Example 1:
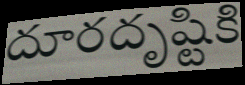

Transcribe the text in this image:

దూరదృష్టికి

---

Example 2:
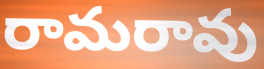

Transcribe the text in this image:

రామరావు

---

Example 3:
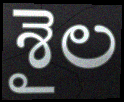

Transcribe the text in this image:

శైల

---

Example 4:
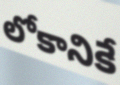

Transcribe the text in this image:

లోకానికే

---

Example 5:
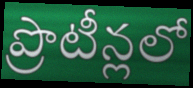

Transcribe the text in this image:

ప్రొటీన్లలో